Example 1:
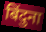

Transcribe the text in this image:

बिंदुना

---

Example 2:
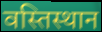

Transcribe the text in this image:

वस्तिस्थान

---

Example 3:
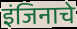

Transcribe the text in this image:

इंजिनाचे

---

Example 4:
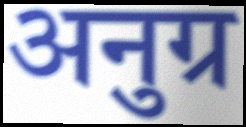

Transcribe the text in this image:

अनुग्र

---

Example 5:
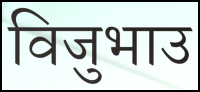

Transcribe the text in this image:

विजुभाउ